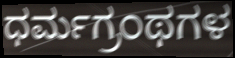
ಧರ್ಮಗ್ರಂಥಗಳ